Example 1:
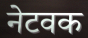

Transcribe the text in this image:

नेटवक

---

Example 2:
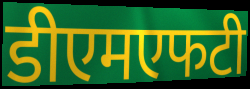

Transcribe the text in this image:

डीएमएफटी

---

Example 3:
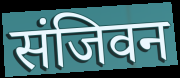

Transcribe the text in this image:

संजिवन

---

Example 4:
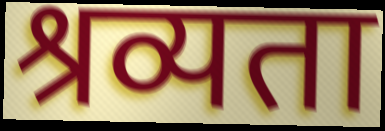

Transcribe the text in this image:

श्रव्यता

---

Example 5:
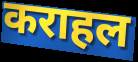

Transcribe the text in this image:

कराहल